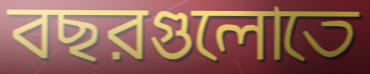
বছরগুলোতে